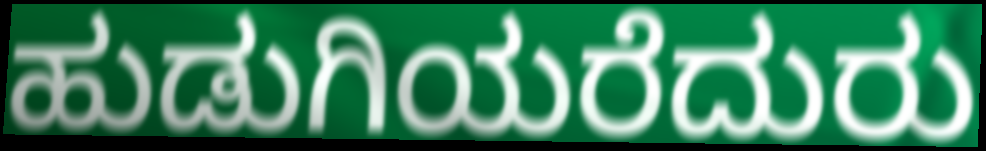
ಹುಡುಗಿಯರೆದುರು